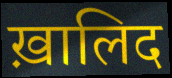
ख़ालिद